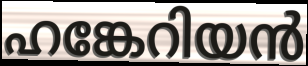
ഹങ്കേറിയൻ